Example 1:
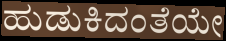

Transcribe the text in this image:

ಹುಡುಕಿದಂತೆಯೇ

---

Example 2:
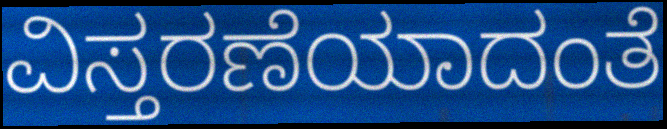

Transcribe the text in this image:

ವಿಸ್ತರಣೆಯಾದಂತೆ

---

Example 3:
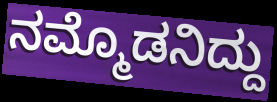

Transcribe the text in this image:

ನಮ್ಮೊಡನಿದ್ದು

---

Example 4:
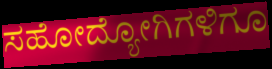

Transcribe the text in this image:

ಸಹೋದ್ಯೋಗಿಗಳಿಗೂ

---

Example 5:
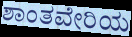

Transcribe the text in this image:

ಶಾಂತವೇರಿಯ